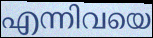
എന്നിവയെ